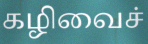
கழிவைச்